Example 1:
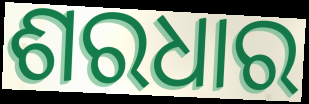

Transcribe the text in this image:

ଶରଧାର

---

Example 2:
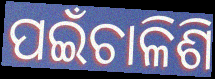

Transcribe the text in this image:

ପଇଁଚାଳିଶି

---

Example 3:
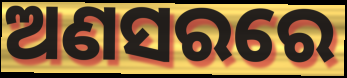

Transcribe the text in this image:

ଅଣସରରେ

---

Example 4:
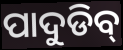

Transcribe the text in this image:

ପାଦୁଡିବ୍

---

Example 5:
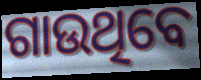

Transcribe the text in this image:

ଗାଉଥିବେ